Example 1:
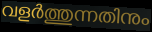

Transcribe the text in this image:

വളർത്തുന്നതിനും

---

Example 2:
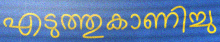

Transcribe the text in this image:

എടുത്തുകാണിച്ചു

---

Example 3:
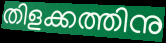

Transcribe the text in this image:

തിളക്കത്തിനു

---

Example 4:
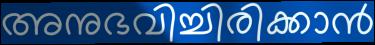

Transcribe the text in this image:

അനുഭവിച്ചിരിക്കാൻ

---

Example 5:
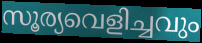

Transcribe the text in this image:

സൂര്യവെളിച്ചവും